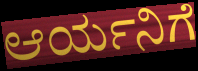
ಆರ್ಯನಿಗೆ